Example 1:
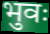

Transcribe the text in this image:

भुवः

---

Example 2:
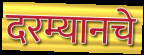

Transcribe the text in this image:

दरम्यानचे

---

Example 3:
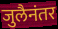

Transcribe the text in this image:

जुलैनंतर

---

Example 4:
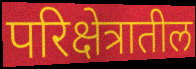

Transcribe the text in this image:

परिक्षेत्रातील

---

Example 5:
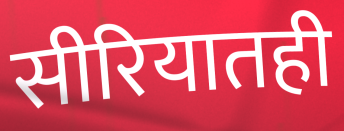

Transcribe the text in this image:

सीरियातही